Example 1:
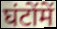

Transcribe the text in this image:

घंटोंमें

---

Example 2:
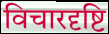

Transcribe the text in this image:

विचारदृष्टि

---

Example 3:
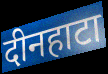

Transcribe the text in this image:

दीनहाटा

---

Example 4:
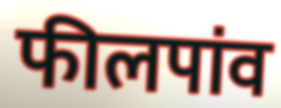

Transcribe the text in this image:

फीलपांव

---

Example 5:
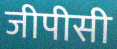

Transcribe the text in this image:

जीपीसी